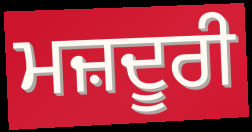
ਮਜ਼ਦੂਰੀ